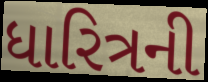
ધારિત્રની